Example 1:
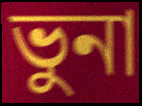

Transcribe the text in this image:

ভুনা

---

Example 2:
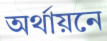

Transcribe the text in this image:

অর্থায়নে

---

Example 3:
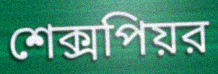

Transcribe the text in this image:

শেক্সপিয়র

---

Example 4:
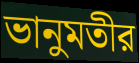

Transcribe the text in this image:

ভানুমতীর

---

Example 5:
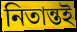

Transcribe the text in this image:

নিতান্তই